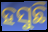
ହସୁଛି